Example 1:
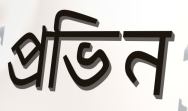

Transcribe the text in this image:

প্রভিন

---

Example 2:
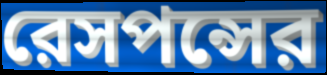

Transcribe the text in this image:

রেসপন্সের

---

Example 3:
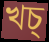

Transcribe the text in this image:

খচ্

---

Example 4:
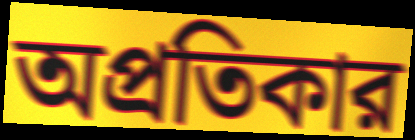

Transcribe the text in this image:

অপ্রতিকার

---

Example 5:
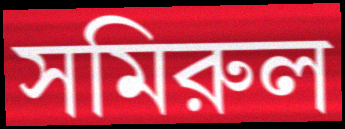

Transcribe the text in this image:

সমিরুল